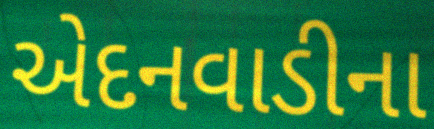
એદનવાડીના